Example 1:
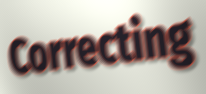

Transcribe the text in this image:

Correcting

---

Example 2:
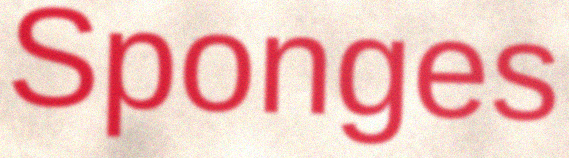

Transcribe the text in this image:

Sponges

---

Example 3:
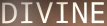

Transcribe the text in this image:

DIVINE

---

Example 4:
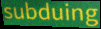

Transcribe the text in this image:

subduing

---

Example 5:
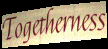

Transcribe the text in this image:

Togetherness